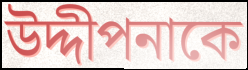
উদ্দীপনাকে